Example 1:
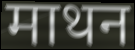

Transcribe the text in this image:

माथन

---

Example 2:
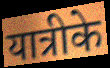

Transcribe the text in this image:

यात्रीके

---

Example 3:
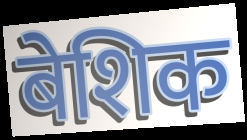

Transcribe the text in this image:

बेशिक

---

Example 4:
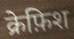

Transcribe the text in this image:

क्रेफ़िश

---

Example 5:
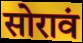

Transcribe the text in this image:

सोरावं